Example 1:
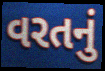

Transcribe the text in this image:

વરતનું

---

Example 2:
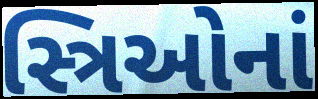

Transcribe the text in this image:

સ્ત્રિઓનાં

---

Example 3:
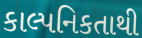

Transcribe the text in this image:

કાલ્પનિકતાથી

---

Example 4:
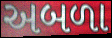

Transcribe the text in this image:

અબળા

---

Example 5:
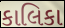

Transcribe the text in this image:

કાલિકા